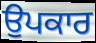
ਉਪਕਾਰ